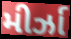
મીર્ઝા